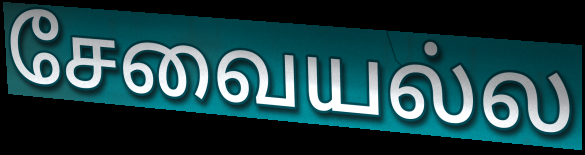
சேவையல்ல